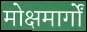
मोक्षमार्गों